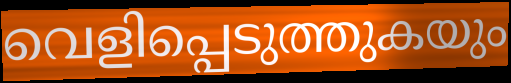
വെളിപ്പെടുത്തുകയും